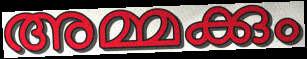
അമ്മക്കും